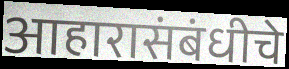
आहारासंबंधीचे